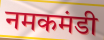
नमकमंडी